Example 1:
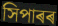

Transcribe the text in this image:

সিপাৰৰ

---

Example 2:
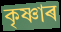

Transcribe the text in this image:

কৃষ্ণাৰ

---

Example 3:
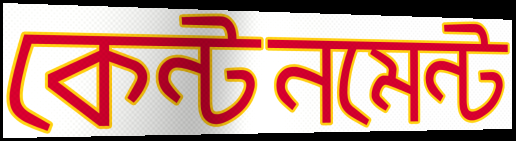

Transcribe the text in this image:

কেন্টনমেন্ট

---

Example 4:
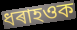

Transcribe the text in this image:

ধৰাহওক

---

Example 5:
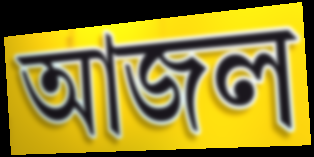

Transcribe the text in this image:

আজল